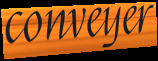
conveyer